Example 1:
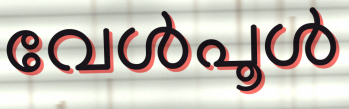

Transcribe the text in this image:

വേൾപൂൾ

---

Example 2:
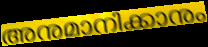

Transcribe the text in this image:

അനുമാനിക്കാനും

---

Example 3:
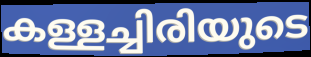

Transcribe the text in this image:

കള്ളച്ചിരിയുടെ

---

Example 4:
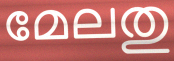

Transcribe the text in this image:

മേലതു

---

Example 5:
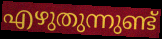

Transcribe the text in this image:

എഴുതുന്നുണ്ട്